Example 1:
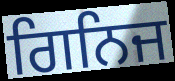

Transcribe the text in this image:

ਗਿਨਿਜ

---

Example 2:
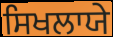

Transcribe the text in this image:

ਸਿਖਲਾਯੇ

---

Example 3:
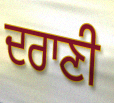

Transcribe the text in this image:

ਦਰਾਣੀ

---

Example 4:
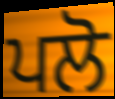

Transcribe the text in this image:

ਪਲੋ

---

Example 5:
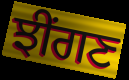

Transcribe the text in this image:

ਝੀਂਗਣ